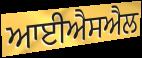
ਆਈਐਸਐਲ